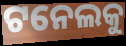
ଟନେଲକୁ